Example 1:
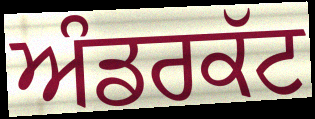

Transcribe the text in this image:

ਅੰਡਰਕੱਟ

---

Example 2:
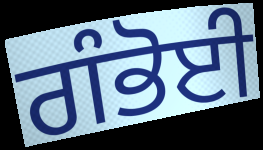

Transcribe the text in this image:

ਗੰਭੋਈ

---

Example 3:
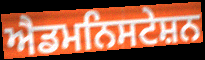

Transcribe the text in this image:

ਐਡਮਨਿਸਟੇਸ਼ਨ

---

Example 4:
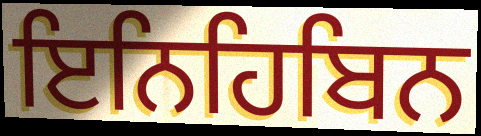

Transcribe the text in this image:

ਇਨਿਹਿਬਿਨ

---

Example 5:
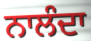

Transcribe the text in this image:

ਨਾਲੰਦਾ